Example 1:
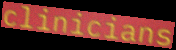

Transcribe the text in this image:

clinicians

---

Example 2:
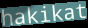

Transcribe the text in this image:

hakikat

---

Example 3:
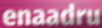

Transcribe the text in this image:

enaadru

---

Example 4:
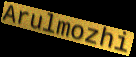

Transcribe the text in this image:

Arulmozhi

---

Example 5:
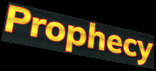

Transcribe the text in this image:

Prophecy